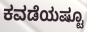
ಕವಡೆಯಷ್ಟೂ